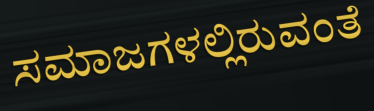
ಸಮಾಜಗಳಲ್ಲಿರುವಂತೆ